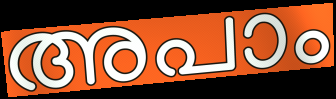
അപാം